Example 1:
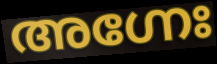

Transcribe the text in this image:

അഗ്നേഃ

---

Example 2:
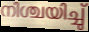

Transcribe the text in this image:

നിശ്ചയിച്ചു്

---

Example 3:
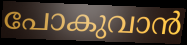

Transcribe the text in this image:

പോകുവാൻ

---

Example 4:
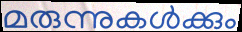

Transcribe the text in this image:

മരുന്നുകൾക്കും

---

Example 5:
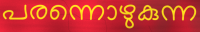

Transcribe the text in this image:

പരന്നൊഴുകുന്ന